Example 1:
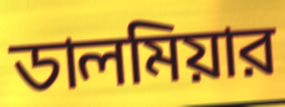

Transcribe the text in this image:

ডালমিয়ার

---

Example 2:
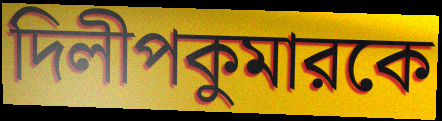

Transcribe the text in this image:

দিলীপকুমারকে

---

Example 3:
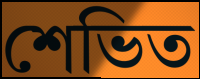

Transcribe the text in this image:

শেভিত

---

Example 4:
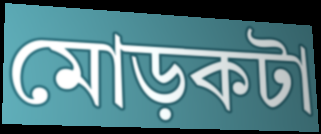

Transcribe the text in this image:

মোড়কটা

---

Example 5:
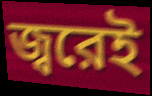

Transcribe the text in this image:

জ্বরেই